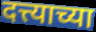
दत्त्याच्या